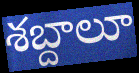
శబ్దాలూ